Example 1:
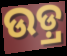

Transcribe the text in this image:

ଉଡ଼୍ର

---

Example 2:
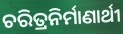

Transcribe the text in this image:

ଚରିତ୍ରନିର୍ମାଣାର୍ଥୀ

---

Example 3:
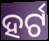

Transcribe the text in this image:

ହର୍ଟ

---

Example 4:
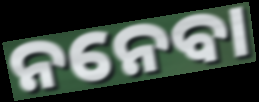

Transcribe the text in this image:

ନନେବା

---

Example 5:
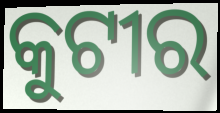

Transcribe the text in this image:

କୁଟୀର